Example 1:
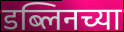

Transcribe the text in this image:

डब्लिनच्या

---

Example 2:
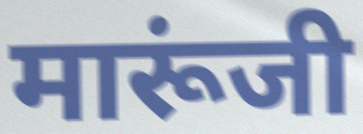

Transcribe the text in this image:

मारूंजी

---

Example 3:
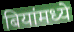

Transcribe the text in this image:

बियांमध्ये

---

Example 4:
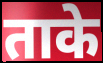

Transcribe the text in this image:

ताके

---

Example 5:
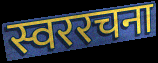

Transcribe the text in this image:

स्वररचना